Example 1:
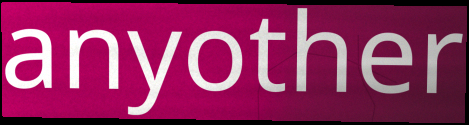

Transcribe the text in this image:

anyother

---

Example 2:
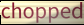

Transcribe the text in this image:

chopped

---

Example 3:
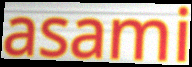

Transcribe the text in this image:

asami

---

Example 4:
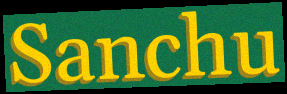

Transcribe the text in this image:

Sanchu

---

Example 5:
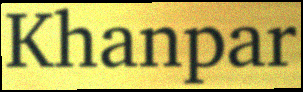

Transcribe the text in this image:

Khanpar